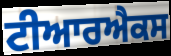
ਟੀਆਰਐਕਸ